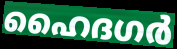
ഹൈദഗർ